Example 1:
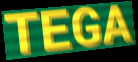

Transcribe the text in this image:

TEGA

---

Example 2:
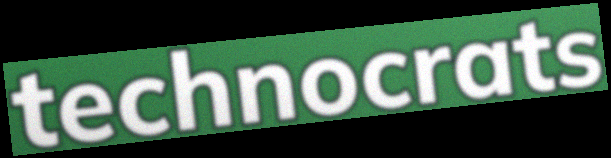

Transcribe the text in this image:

technocrats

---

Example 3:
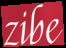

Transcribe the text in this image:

zibe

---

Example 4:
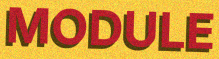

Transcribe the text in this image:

MODULE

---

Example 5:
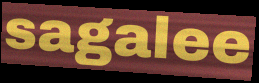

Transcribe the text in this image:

sagalee